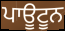
ਪਾਊਟੂਨ